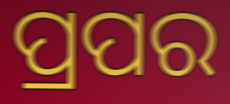
ପ୍ରପର